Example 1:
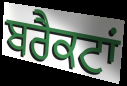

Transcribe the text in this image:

ਬਰੈਕਟਾਂ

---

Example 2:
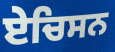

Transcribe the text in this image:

ਏਚਿਸਨ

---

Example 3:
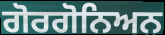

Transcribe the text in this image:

ਗੋਰਗੋਨਿਅਨ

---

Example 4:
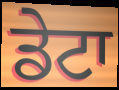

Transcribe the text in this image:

ਡੇਟਾ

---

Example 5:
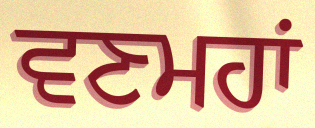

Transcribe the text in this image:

ਵਣਮਹਾਂ